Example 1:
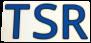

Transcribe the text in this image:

TSR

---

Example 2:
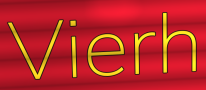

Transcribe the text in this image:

Vierh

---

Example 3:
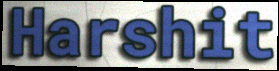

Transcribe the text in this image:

Harshit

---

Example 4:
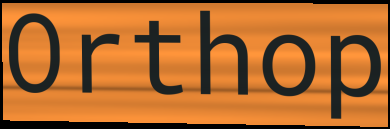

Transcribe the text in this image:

Orthop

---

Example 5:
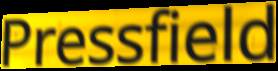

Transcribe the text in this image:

Pressfield